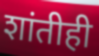
शांतीही